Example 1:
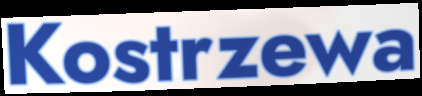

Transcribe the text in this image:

Kostrzewa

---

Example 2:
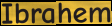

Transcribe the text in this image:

Ibrahem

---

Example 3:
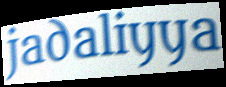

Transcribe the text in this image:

jadaliyya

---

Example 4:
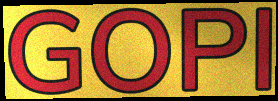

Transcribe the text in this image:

GOPI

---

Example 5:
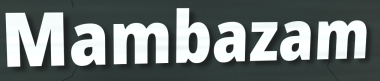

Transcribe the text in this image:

Mambazam